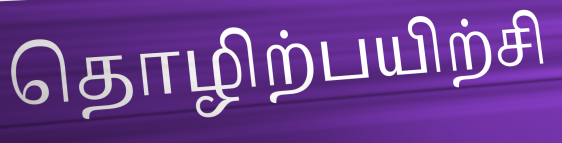
தொழிற்பயிற்சி